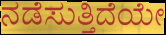
ನಡೆಸುತ್ತಿದೆಯೇ